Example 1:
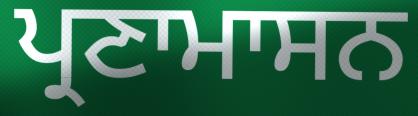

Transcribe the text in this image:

ਪ੍ਰਣਾਮਾਸਨ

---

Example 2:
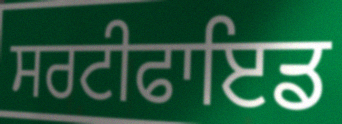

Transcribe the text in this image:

ਸਰਟੀਫਾਇਡ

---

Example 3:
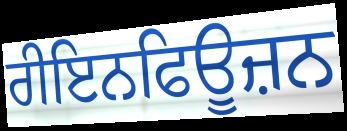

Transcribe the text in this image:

ਰੀਇਨਫਿਊਜ਼ਨ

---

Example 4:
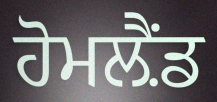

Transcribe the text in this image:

ਹੋਮਲ਼ੈਂਡ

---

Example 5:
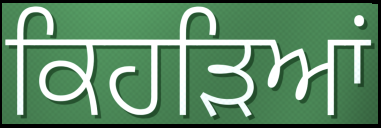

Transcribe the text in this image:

ਕਿਹੜਿਆਂ